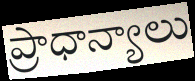
ప్రాధాన్యాలు